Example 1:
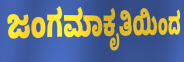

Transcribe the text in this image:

ಜಂಗಮಾಕೃತಿಯಿಂದ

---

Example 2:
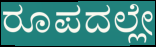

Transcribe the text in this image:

ರೂಪದಲ್ಲೇ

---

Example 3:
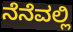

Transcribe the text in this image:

ನೆನೆವಲ್ಲಿ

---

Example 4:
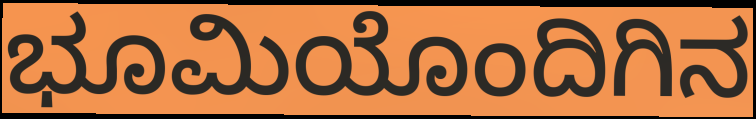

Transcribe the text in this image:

ಭೂಮಿಯೊಂದಿಗಿನ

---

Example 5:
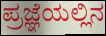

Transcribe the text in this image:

ಪ್ರಜ್ಞೆಯಲ್ಲಿನ